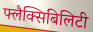
फ्लैक्सिबिलिटी